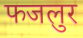
फजलुर